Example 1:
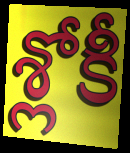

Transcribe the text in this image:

శ్లోకీ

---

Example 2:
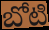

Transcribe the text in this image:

బోటి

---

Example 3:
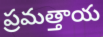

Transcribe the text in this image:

ప్రమత్తాయ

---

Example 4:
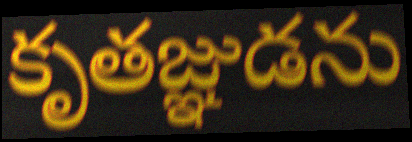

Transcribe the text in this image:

కృతజ్ఞుడను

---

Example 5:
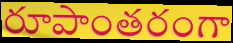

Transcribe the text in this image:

రూపాంతరంగా